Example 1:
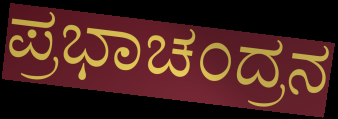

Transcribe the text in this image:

ಪ್ರಭಾಚಂದ್ರನ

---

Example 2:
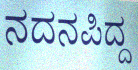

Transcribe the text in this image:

ನದನಪಿದ್ದ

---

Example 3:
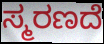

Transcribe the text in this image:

ಸ್ಮರಣದೆ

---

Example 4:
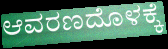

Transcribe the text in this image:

ಆವರಣದೊಳಕ್ಕೆ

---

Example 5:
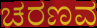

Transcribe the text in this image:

ಚರಣವ